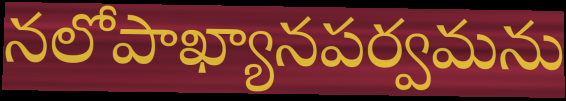
నలోపాఖ్యానపర్వమను